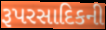
રૂપરસાદિકની